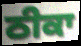
ਠੀਕਾ